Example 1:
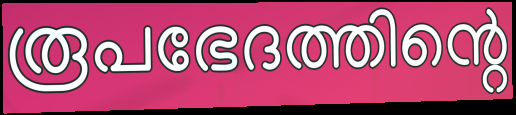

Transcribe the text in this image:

രൂപഭേദത്തിന്റെ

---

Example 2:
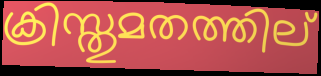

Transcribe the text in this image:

ക്രിസ്തുമതത്തില്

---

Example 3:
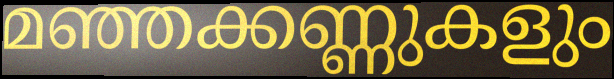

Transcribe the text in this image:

മഞ്ഞക്കണ്ണുകളും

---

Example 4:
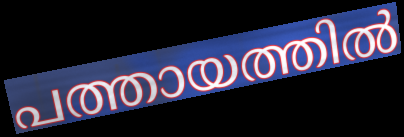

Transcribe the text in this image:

പത്തായത്തിൽ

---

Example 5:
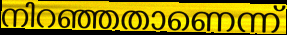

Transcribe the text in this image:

നിറഞ്ഞതാണെന്ന്